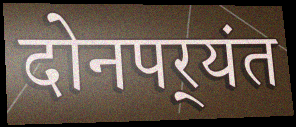
दोनपर्यंत